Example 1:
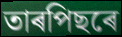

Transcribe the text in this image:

তাৰপিছৰে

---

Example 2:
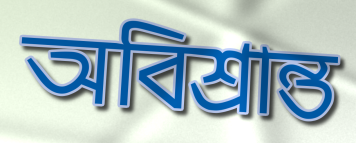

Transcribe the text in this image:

অবিশ্ৰান্ত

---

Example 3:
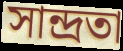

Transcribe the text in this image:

সান্দ্ৰতা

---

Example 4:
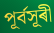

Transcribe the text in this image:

পূৰ্বসূৰী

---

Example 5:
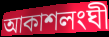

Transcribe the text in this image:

আকাশলংঘী